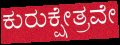
ಕುರುಕ್ಷೇತ್ರವೇ